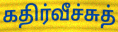
கதிர்வீச்சுத்